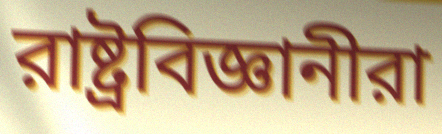
রাষ্ট্রবিজ্ঞানীরা